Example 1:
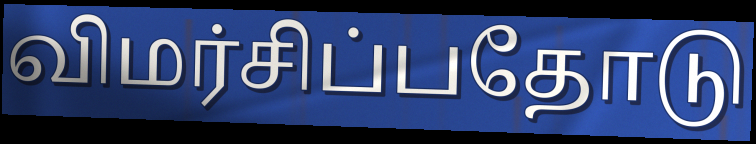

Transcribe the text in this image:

விமர்சிப்பதோடு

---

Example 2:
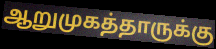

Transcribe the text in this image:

ஆறுமுகத்தாருக்கு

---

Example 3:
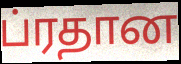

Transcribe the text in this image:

ப்ரதான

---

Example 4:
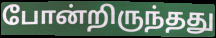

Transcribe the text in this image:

போன்றிருந்தது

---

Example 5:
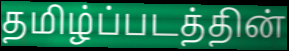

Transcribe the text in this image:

தமிழ்ப்படத்தின்